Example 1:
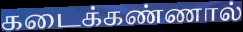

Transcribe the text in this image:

கடைக்கண்ணால்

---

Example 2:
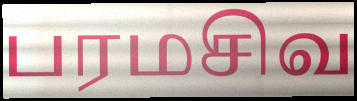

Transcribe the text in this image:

பரமசிவ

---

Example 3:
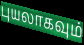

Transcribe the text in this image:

புயலாகவும்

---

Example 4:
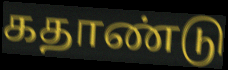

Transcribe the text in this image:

கதாண்டு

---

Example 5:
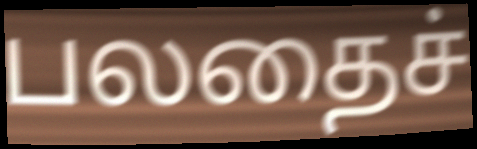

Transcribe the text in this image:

பலதைச்